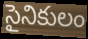
సైనికులం